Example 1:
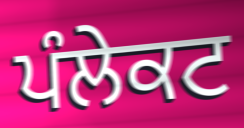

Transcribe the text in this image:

ਪੰਲੇਕਟ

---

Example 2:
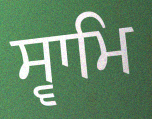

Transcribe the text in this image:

ਸ੍ਵਾਮਿ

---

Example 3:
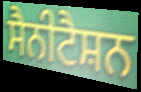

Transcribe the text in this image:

ਸੈਨੀਟੈਸ਼ਨ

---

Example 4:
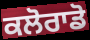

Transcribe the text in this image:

ਕਲੋਰਾਡੋ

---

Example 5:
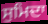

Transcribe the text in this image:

ਸੁਮਿਦਾ